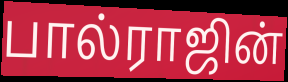
பால்ராஜின்